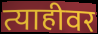
त्याहीवर